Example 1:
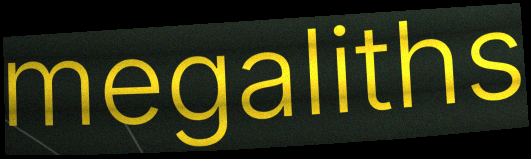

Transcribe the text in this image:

megaliths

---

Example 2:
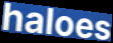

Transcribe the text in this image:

haloes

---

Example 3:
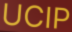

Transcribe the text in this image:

UCIP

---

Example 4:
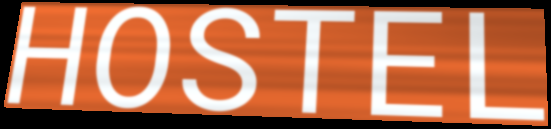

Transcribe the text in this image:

HOSTEL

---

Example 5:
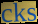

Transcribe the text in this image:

cks